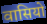
वासियो